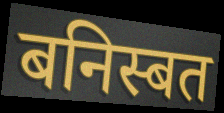
बनिस्बत